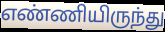
எண்ணியிருந்து